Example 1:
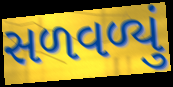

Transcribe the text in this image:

સળવળ્યું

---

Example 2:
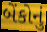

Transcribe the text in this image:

બેંકોનું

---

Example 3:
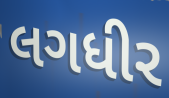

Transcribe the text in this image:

લગધીર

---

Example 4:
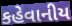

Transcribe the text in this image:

કહેવાનીય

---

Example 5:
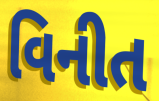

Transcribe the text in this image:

વિનીત